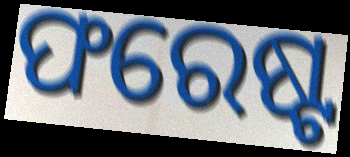
ଫରେଷ୍ଟ